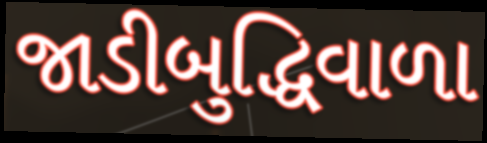
જાડીબુદ્ધિવાળા